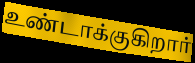
உண்டாக்குகிறார்